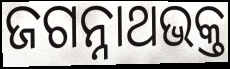
ଜଗନ୍ନାଥଭକ୍ତ